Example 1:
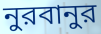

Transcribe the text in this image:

নুরবানুর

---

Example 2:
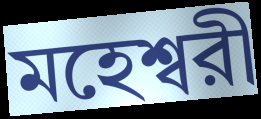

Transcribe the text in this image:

মহেশ্বরী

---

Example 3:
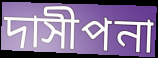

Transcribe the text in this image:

দাসীপনা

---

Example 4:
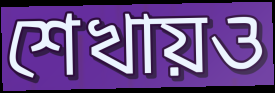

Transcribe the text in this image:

শেখায়ও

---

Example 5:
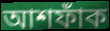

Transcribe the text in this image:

আশফাঁক